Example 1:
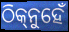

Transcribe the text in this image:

ଠିକ୍‌ନୁହେଁ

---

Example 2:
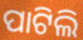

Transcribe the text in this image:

ପାଟିଲି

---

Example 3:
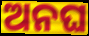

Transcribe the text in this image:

ଅନଘ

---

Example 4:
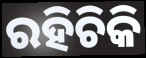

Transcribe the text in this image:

ରହିଚିକି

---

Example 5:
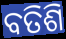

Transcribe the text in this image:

ବତିଶି